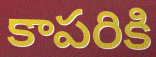
కాపరికి